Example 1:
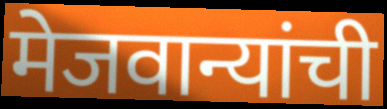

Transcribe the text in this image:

मेजवान्यांची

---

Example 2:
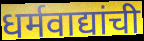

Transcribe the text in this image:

धर्मवाद्यांची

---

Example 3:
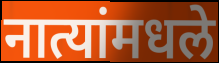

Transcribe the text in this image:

नात्यांमधले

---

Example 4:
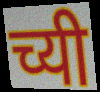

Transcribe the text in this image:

च्यी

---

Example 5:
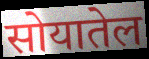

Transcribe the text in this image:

सोयातेल